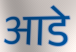
आडे